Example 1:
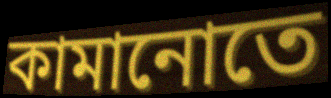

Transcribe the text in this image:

কামানোতে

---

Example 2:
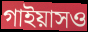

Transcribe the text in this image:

গাইয়াসও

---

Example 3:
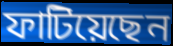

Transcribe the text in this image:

ফাটিয়েছেন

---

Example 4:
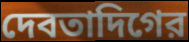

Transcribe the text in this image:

দেবতাদিগের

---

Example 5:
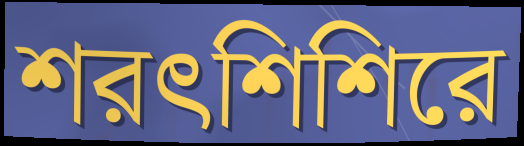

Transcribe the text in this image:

শরৎশিশিরে